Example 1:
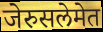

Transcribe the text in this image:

जेरुसलेमेत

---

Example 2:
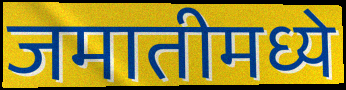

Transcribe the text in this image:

जमातीमध्ये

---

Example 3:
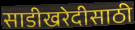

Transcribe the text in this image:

साडीखरेदीसाठी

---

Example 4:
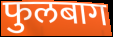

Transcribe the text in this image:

फुलबाग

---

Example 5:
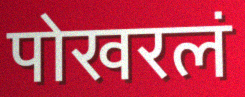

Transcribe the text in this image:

पोखरलं